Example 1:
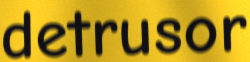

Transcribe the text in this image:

detrusor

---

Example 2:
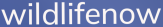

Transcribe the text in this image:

wildlifenow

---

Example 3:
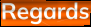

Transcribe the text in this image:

Regards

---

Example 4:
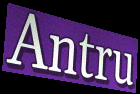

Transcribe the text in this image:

Antru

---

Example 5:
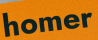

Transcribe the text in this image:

homer